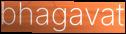
bhagavat